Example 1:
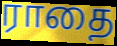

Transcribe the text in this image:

ராதை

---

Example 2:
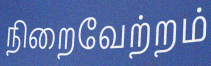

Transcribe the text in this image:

நிறைவேற்றம்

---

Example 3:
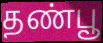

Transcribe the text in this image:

தண்பூ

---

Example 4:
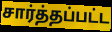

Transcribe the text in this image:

சார்த்தப்பட்ட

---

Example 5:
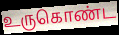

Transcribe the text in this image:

உருகொண்ட